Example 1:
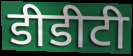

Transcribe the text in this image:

डीडीटी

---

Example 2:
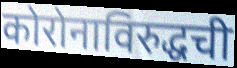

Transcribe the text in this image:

कोरोनाविरुद्धची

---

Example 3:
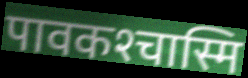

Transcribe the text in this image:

पावकश्चास्मि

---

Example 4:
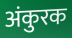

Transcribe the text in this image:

अंकुरक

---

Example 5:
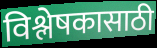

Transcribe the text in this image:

विश्लेषकासाठी